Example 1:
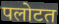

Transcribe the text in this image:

पलोटत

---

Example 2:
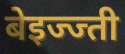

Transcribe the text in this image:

बेइज्ज्ती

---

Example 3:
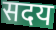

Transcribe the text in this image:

सदय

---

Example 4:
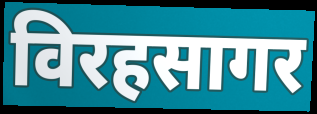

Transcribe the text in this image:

विरहसागर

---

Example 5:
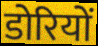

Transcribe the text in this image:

डोरियों